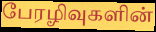
பேரழிவுகளின்